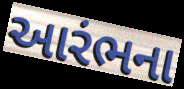
આરંભના